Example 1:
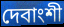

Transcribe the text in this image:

দেবাংশী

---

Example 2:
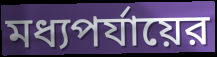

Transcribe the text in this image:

মধ্যপর্যায়ের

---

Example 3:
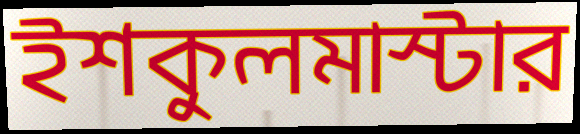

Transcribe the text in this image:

ইশকুলমাস্টার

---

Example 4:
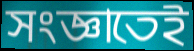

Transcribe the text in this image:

সংজ্ঞাতেই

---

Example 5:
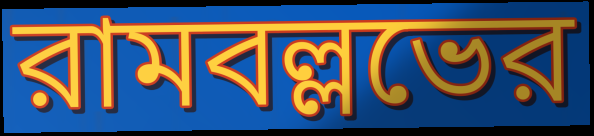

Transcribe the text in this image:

রামবল্লভের